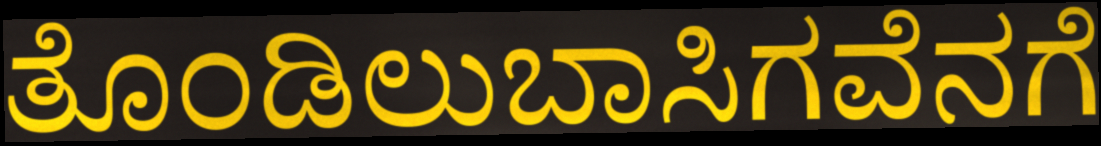
ತೊಂಡಿಲುಬಾಸಿಗವೆನಗೆ